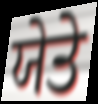
ਯੇਤੇ